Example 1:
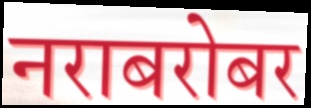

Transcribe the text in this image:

नराबरोबर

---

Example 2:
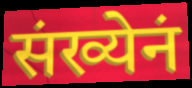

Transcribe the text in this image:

संख्येनं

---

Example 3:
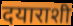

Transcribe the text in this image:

दयाराशी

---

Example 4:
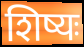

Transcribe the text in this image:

शिष्यः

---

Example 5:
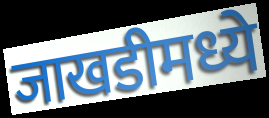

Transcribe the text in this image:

जाखडीमध्ये